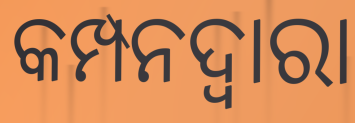
କମ୍ପନଦ୍ୱାରା